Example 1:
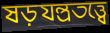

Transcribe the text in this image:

ষড়যন্ত্রতত্ত্বে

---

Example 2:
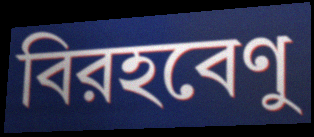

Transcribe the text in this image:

বিরহবেণু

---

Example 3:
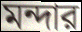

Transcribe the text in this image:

মন্দার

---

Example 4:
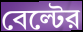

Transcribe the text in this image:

বেল্টের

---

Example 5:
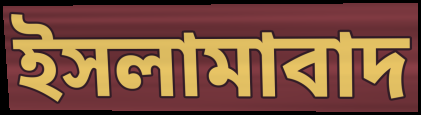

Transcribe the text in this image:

ইসলামাবাদ